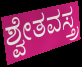
ಶ್ವೇತವಸ್ತ್ರ